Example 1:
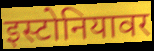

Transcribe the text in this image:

इस्टोनियावर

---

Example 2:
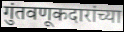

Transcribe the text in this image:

गुंतवणूकदारांच्या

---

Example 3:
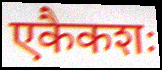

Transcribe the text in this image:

एकैकशः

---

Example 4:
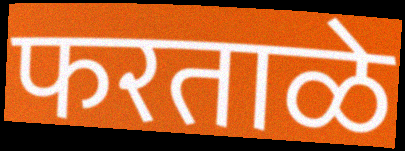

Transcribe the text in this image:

फरताळे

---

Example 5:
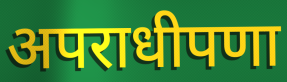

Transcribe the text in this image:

अपराधीपणा